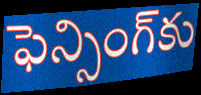
ఫెన్సింగ్‌కు